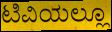
ಟಿವಿಯಲ್ಲೂ